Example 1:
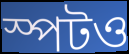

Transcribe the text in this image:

স্পটও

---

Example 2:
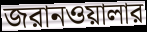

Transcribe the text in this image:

জরানওয়ালার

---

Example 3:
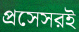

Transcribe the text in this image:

প্রসেসরই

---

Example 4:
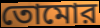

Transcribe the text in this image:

তোমোর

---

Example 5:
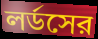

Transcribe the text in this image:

লর্ডসের